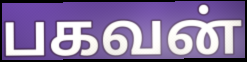
பகவன்